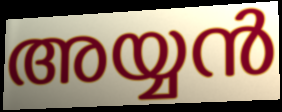
അയ്യൻ